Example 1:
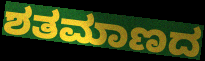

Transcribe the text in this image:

ಶತಮಾಣದ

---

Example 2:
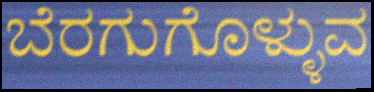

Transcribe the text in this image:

ಬೆರಗುಗೊಳ್ಳುವ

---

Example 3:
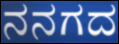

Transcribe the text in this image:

ನನಗದ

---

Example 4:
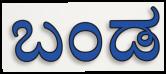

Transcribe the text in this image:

ಬಂಡ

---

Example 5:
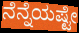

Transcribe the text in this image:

ನೆನ್ನೆಯಷ್ಟೇ